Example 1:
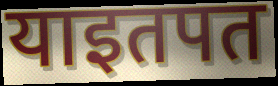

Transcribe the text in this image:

याइतपत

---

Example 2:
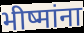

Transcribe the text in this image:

भीष्मांना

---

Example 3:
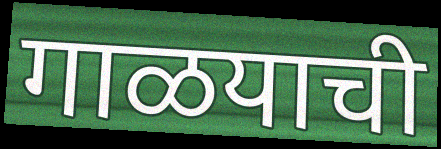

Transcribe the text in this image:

गाळयाची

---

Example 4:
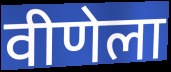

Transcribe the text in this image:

वीणेला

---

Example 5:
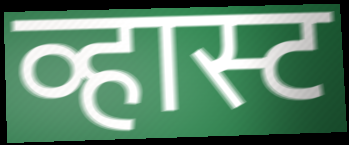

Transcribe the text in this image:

व्हास्ट